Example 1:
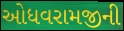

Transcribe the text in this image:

ઓધવરામજીની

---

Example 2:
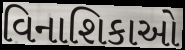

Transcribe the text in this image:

વિનાશિકાઓ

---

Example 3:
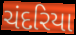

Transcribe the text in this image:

ચંદરિયા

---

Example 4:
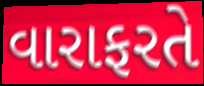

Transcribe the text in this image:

વારાફરતે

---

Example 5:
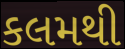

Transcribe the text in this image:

કલમથી